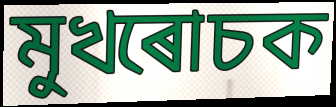
মুখৰোচক